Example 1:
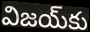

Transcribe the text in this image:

విజయ్‌కు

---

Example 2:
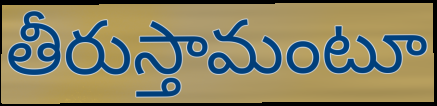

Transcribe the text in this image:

తీరుస్తామంటూ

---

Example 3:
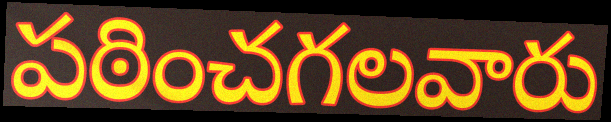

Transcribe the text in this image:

పఠించగలవారు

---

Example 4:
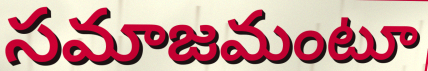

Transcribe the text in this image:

సమాజమంటూ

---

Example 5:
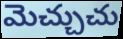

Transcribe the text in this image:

మెచ్చుచు